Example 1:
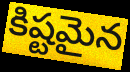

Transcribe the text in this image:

కిష్టమైన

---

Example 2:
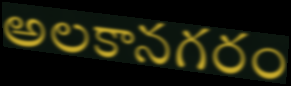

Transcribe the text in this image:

అలకానగరం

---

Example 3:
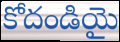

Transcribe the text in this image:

కోదండియై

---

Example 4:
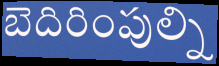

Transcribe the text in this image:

బెదిరింపుల్ని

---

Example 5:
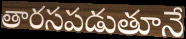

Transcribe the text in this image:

తారసపడుతూనే